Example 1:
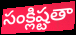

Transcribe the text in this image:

సంక్లిష్టతా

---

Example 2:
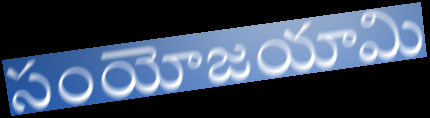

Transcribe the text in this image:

సంయోజయామి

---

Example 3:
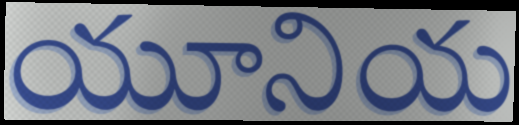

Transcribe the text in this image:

యూనియ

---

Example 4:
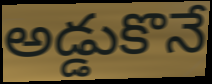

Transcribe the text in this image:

అడ్డుకొనే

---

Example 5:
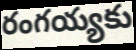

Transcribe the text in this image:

రంగయ్యకు